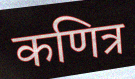
कणित्र